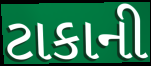
ટાકાની